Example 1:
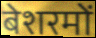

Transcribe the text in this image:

बेशरमों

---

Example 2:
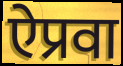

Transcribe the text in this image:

ऐप्रवा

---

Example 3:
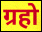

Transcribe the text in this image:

ग्रहो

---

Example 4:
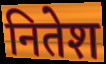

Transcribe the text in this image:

नितेश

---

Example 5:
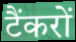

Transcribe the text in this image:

टैंकरों